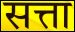
सत्ता